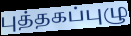
புத்தகப்புழு